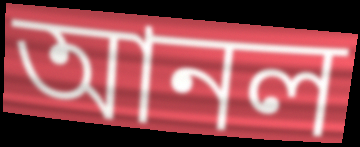
আনল